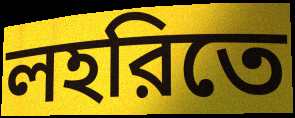
লহরিতে